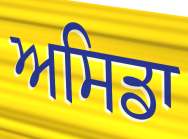
ਅਸਿਡਾ